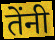
तेंनी